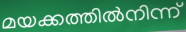
മയക്കത്തിൽനിന്ന്